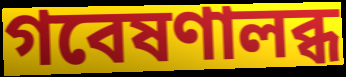
গবেষণালব্ধ